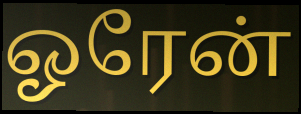
ஓரேன்